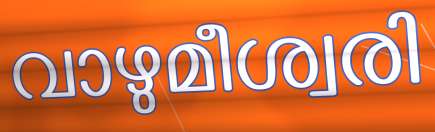
വാഴുമീശ്വരി